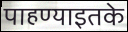
पाहण्याइतके